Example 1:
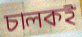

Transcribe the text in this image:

চালকই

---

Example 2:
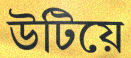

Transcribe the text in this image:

উটিয়ে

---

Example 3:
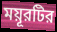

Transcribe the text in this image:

ময়ূরটির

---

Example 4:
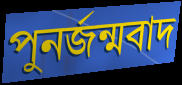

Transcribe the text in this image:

পুনর্জন্মবাদ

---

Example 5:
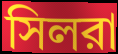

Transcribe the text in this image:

সিলরা